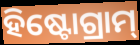
ହିଷ୍ଟୋଗ୍ରାମ୍